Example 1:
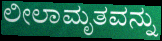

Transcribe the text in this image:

ಲೀಲಾಮೃತವನ್ನು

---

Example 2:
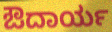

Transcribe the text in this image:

ಔದಾರ್ಯ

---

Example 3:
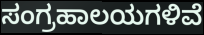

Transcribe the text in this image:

ಸಂಗ್ರಹಾಲಯಗಳಿವೆ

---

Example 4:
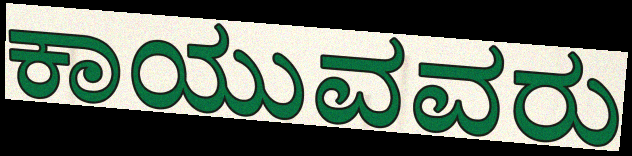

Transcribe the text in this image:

ಕಾಯುವವರು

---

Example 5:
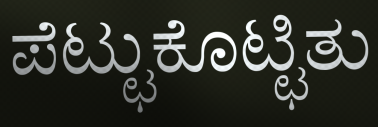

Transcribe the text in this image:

ಪೆಟ್ಟುಕೊಟ್ಟಿತು